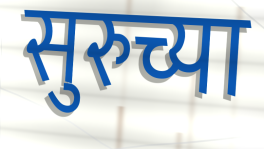
सुरुच्या